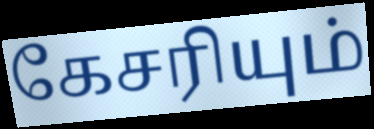
கேசரியும்